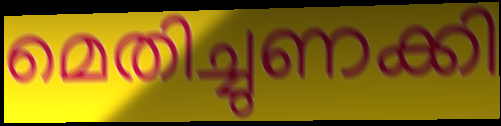
മെതിച്ചുണക്കി